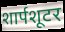
शार्पशूटर